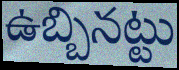
ఉబ్బినట్టు